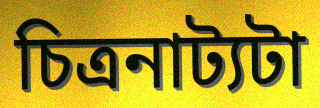
চিত্রনাট্যটা